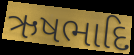
ઋષભાદિ